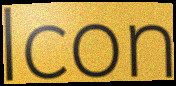
Icon